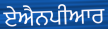
ਏਐਨਪੀਆਰ